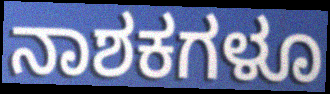
ನಾಶಕಗಳೂ